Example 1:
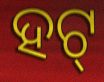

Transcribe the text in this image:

ହଟ୍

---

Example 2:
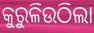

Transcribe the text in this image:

କୁରୁଳିଉଠିଲା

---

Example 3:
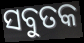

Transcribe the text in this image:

ସବୁତକ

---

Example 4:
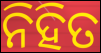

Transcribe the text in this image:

ନିହିତ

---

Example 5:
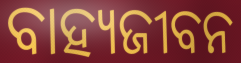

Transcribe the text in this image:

ବାହ୍ୟଜୀବନ